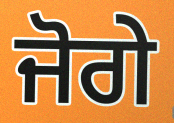
ਜੋਗੇ